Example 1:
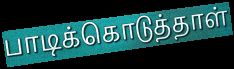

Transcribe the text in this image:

பாடிக்கொடுத்தாள்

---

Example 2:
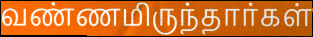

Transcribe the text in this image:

வண்ணமிருந்தார்கள்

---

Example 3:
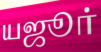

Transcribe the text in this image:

யஜூர்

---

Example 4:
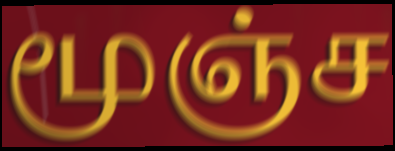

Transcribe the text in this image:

மூஞ்ச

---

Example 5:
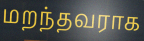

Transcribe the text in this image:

மறந்தவராக